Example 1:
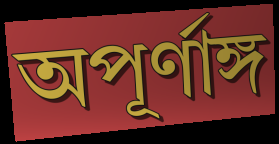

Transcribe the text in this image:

অপূর্ণাঙ্গ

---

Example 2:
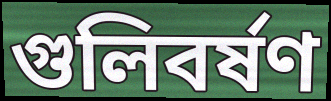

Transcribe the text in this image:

গুলিবর্ষণ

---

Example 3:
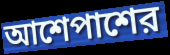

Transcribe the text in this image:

আশেপাশের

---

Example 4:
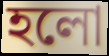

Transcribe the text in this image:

হলো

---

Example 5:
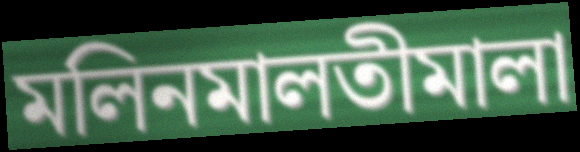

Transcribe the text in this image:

মলিনমালতীমালা